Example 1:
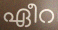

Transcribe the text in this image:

ഏീറ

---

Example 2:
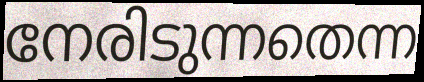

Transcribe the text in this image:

നേരിടുന്നതെന്ന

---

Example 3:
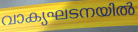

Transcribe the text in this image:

വാക്യഘടനയിൽ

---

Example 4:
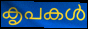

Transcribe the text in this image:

കൃപകൾ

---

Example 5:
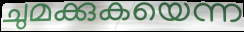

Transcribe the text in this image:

ചുമക്കുകയെന്ന